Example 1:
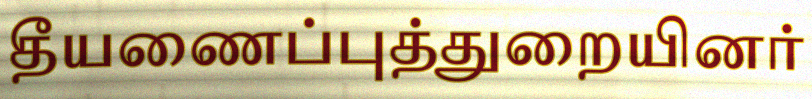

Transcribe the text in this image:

தீயணைப்புத்துறையினர்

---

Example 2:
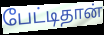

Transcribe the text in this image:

பேட்டிதான்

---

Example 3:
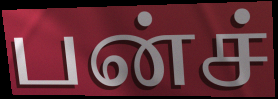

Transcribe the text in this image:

பன்ச்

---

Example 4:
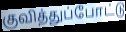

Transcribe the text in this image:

குவித்துப்போட்டு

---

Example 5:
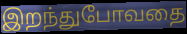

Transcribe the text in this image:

இறந்துபோவதை